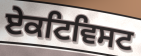
ਏਕਟਿਵਿਸਟ